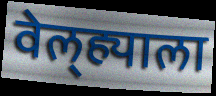
वेल्ह्याला